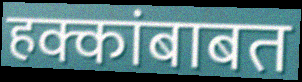
हक्कांबाबत